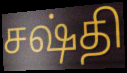
சஷ்தி